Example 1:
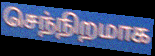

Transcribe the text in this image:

செந்நிறமாக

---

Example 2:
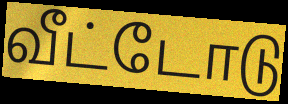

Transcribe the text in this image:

வீட்டோடு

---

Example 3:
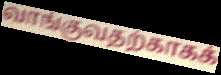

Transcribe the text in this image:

வாங்குவதற்காகக்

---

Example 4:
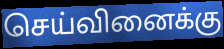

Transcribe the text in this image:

செய்வினைக்கு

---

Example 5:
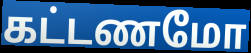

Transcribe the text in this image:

கட்டணமோ